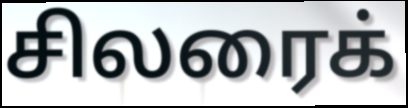
சிலரைக்